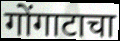
गोंगाटाचा